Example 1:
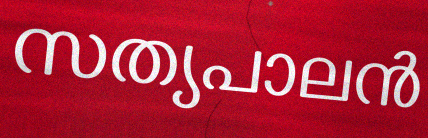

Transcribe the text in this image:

സത്യപാലൻ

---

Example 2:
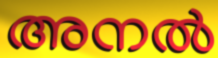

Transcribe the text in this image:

അനൽ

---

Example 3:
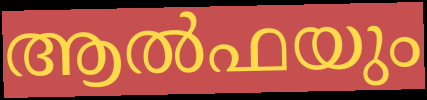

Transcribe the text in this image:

ആൽഫയും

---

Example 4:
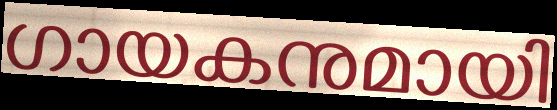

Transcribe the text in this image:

ഗായകനുമായി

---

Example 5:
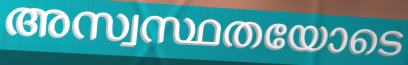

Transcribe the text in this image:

അസ്വസ്ഥതയോടെ